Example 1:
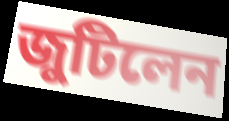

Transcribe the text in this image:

জুটিলেন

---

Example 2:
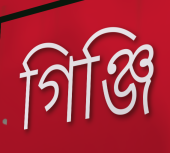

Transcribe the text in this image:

গিঞ্জি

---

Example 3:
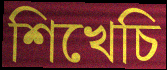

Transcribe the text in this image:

শিখেচি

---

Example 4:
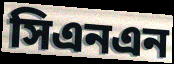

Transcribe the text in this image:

সিএনএন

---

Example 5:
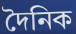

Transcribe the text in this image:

দৈনিক